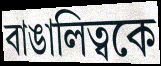
বাঙালিত্বকে